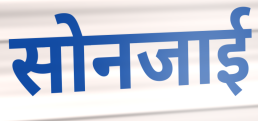
सोनजाई